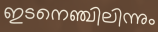
ഇടനെഞ്ചിലിന്നും